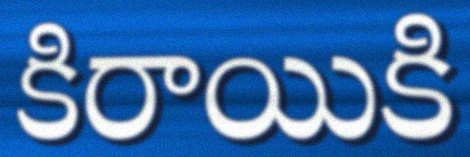
కిరాయికి